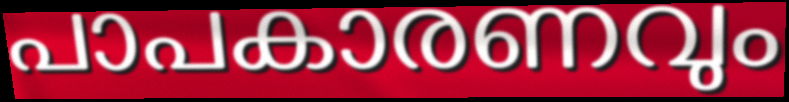
പാപകാരണവും